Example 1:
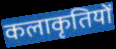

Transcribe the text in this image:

कलाकृतियों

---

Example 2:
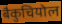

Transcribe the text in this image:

बैकुचियोल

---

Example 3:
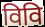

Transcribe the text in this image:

विवि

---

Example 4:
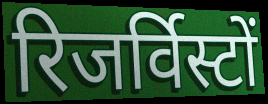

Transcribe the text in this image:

रिजर्विस्टों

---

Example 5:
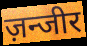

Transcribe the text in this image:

ज़न्जीर